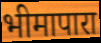
भीमापारा